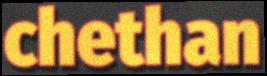
chethan